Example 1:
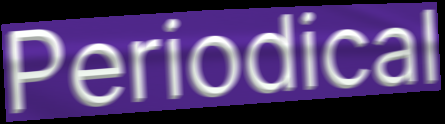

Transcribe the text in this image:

Periodical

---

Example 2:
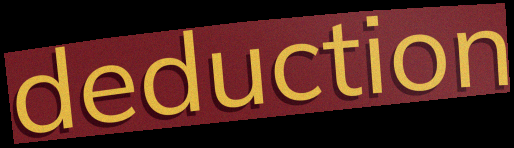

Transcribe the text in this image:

deduction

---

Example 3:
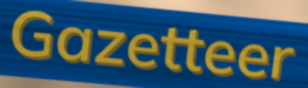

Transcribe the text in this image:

Gazetteer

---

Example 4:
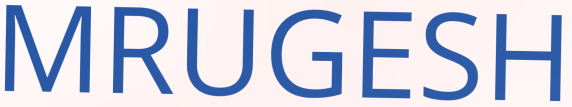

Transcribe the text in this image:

MRUGESH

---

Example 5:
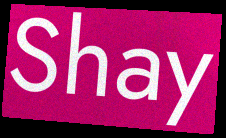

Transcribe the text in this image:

Shay